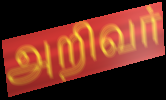
அறிவர்